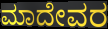
ಮಾದೇವರ